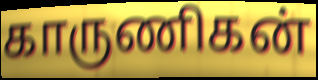
காருணிகன்